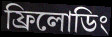
ফ্রিলোডিং